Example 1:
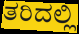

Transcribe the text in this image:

ತರಿದಲ್ಲಿ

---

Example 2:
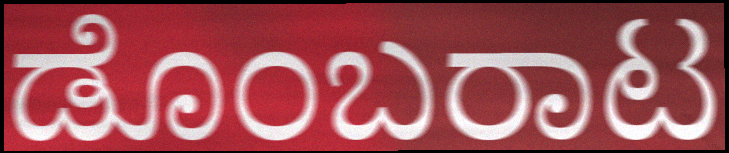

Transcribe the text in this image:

ಡೊಂಬರಾಟ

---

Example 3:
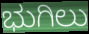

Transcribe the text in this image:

ಭುಗಿಲು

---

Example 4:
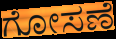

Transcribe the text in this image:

ಗೋಸಣೆ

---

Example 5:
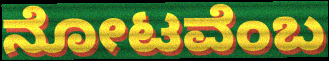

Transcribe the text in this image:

ನೋಟವೆಂಬ